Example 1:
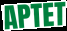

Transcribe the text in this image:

APTET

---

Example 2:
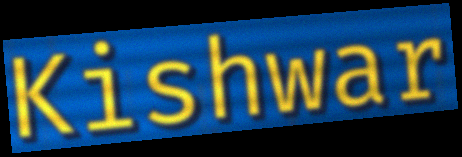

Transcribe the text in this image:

Kishwar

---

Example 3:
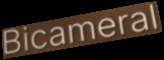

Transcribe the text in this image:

Bicameral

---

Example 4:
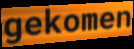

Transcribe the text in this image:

gekomen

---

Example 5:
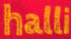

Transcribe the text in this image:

halli